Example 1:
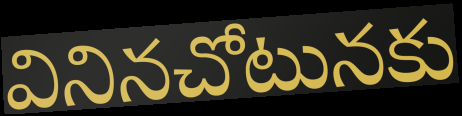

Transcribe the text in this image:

వినినచోటునకు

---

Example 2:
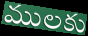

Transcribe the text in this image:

ములకు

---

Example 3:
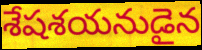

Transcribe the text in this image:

శేషశయనుడైన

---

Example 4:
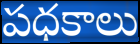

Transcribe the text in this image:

పధకాలు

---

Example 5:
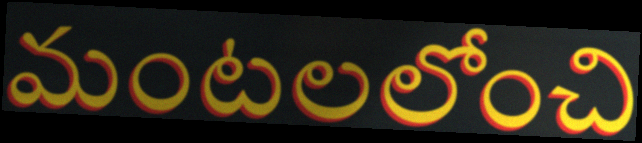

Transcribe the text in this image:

మంటలలోంచి